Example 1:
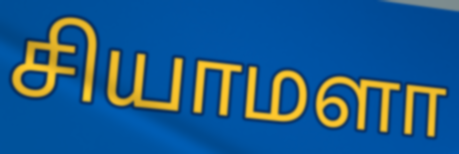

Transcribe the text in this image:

சியாமளா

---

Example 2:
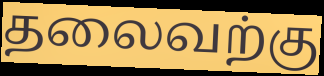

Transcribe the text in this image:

தலைவற்கு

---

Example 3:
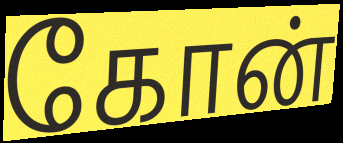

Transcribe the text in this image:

கோன்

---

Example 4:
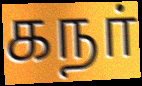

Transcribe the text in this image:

கநர்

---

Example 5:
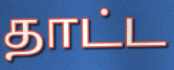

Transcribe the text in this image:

தாட்ட